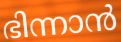
ഭിന്നാൻ